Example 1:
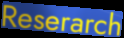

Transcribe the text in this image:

Reserarch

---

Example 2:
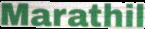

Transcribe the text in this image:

Marathil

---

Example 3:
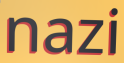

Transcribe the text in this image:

nazi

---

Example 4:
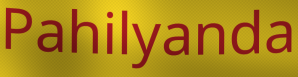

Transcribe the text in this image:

Pahilyanda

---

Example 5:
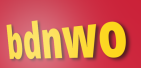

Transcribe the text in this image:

bdnwo